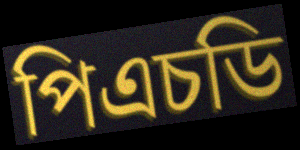
পিএচডি